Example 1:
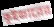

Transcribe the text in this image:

কুইজারের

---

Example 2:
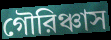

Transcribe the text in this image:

গৌরিঞ্চাস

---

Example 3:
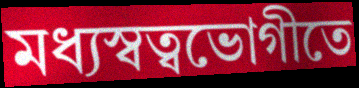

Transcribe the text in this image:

মধ্যস্বত্বভোগীতে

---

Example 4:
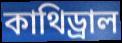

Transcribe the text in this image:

কাথিড্রাল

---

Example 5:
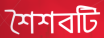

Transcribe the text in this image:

শৈশবটি